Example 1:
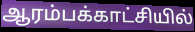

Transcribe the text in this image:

ஆரம்பக்காட்சியில்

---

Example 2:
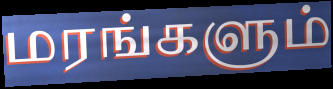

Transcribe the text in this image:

மரங்களும்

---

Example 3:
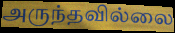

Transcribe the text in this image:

அருந்தவில்லை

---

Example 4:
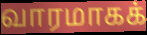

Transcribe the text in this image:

வாரமாகக்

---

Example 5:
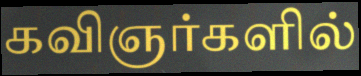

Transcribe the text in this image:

கவிஞர்களில்